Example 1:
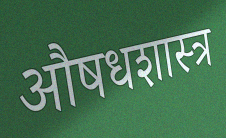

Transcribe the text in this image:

औषधशास्त्र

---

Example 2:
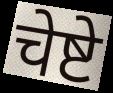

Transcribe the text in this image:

चेष्टे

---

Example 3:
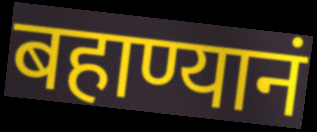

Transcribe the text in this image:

बहाण्यानं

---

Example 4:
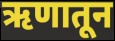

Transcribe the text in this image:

ऋणातून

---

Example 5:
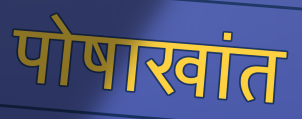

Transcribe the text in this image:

पोषाखांत